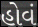
હોવં